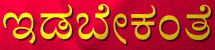
ಇಡಬೇಕಂತೆ